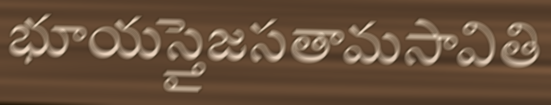
భూయస్తైజసతామసావితి